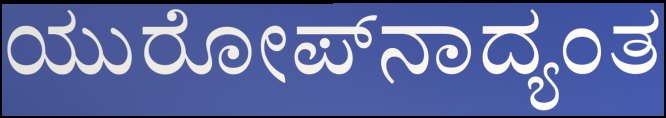
ಯುರೋಪ್‌ನಾದ್ಯಂತ